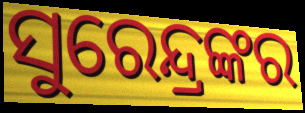
ସୁରେନ୍ଦ୍ରଙ୍କର